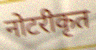
नोटरीकृत